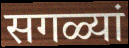
सगळ्यां